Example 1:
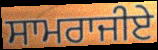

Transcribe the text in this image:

ਸਾਮਰਾਜੀਏ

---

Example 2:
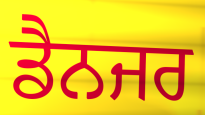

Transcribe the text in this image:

ਡੈਨਜਰ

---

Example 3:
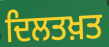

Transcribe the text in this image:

ਦਿਲਤਖ਼ਤ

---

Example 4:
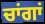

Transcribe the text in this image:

ਚਾਂਗਾਂ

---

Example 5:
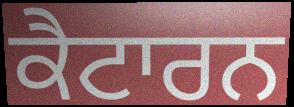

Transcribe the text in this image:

ਕੈਟਾਰਨ